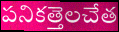
పనికత్తెలచేత